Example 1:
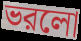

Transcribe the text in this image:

ভরলো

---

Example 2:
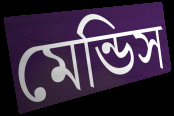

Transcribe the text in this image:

মেন্ডিস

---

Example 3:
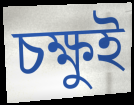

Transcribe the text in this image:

চক্ষুই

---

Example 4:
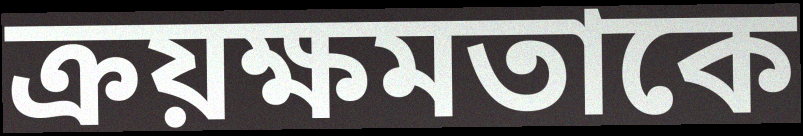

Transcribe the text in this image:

ক্রয়ক্ষমতাকে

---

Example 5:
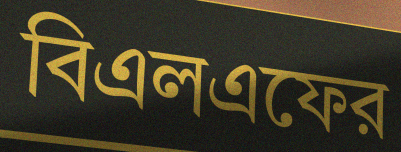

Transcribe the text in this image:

বিএলএফের